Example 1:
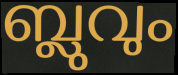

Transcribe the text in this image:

ബ്ലുവും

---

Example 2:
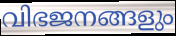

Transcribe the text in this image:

വിഭജനങ്ങളും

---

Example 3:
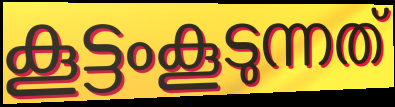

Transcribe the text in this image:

കൂട്ടംകൂടുന്നത്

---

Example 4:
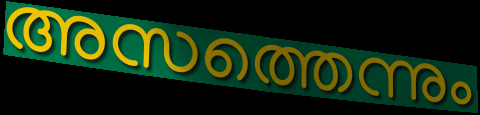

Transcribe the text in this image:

അസത്തെന്നും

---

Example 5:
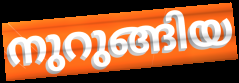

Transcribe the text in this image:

നുറുങ്ങിയ